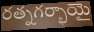
రత్నగర్భాయై